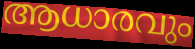
ആധാരവും